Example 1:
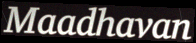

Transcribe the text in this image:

Maadhavan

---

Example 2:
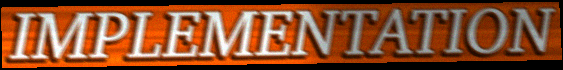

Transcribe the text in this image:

IMPLEMENTATION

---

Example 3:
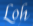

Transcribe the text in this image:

Loh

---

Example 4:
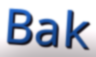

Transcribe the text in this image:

Bak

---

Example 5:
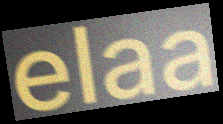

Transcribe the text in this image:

elaa